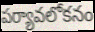
పర్యావలోకనం